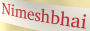
Nimeshbhai